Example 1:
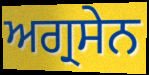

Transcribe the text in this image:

ਅਗ੍ਰਸੇਨ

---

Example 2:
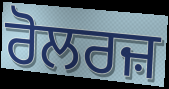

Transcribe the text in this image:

ਰੋਲਰਜ਼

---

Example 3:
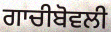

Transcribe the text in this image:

ਗਾਚੀਬੋਵਲੀ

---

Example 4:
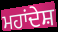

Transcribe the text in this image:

ਮਹਾਂਦੇਸ਼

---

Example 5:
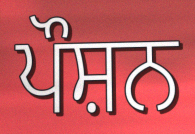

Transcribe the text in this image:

ਪੌਸ਼ਨ